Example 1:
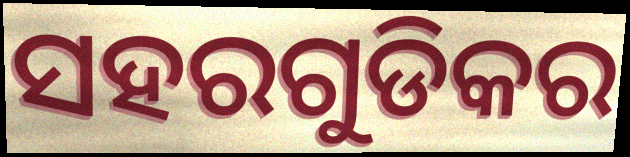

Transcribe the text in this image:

ସହରଗୁଡିକର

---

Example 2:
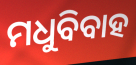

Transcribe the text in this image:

ମଧୁବିବାହ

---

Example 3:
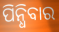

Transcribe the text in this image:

ପିନ୍ଧିବାର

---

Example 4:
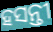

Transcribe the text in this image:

ହସନ୍ତୀ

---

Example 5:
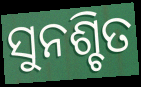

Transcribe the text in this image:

ସୁନଶ୍ଚିତ